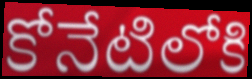
కోనేటిలోకి